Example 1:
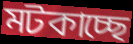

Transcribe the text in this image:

মটকাচ্ছে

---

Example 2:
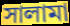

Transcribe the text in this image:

সালামা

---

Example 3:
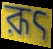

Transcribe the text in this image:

রূৎ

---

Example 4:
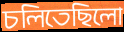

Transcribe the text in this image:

চলিতেছিলো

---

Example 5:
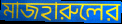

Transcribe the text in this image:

মাজহারুলের